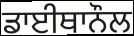
ਡਾਈਥਾਨੌਲ